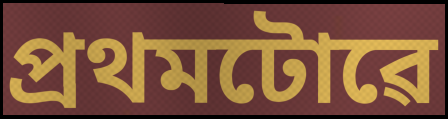
প্ৰথমটোৱে